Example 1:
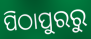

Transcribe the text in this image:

ପିଠାପୁରରୁ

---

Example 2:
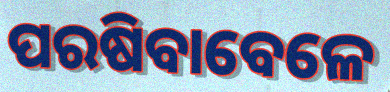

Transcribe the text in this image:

ପରଷିବାବେଳେ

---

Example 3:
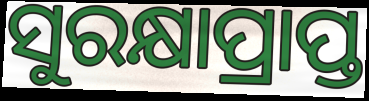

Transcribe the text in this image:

ସୁରକ୍ଷାପ୍ରାପ୍ତ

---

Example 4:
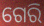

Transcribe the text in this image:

ଗେରି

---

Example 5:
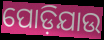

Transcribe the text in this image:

ପୋଡ଼ିଯାଉ